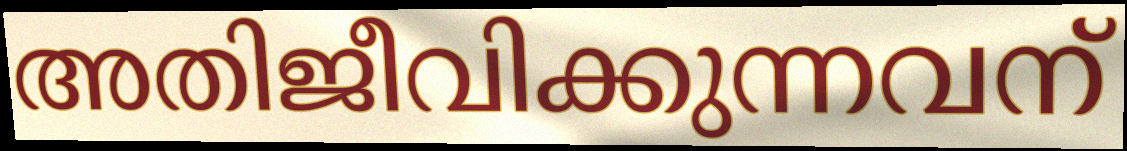
അതിജീവിക്കുന്നവന്